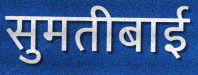
सुमतीबाई